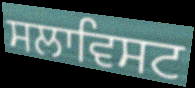
ਸਲਾਵਿਸਟ